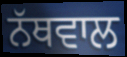
ਨੱਥਵਾਲ